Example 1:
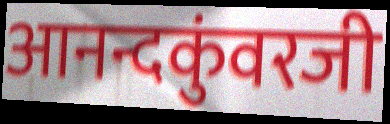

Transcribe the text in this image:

आनन्दकुंवरजी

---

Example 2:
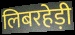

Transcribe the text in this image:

लिबरहेड़ी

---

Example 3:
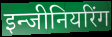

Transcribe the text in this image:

इन्जीनियरिंग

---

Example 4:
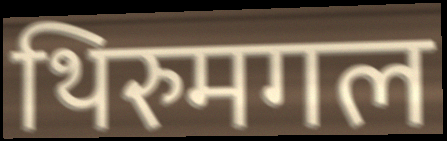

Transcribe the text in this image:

थिरुमगल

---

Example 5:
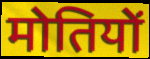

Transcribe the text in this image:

मोतियों